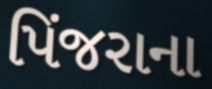
પિંજરાના